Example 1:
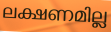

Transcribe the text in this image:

ലക്ഷണമില്ല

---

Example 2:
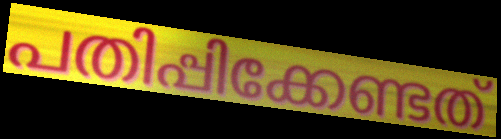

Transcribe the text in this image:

പതിപ്പിക്കേണ്ടത്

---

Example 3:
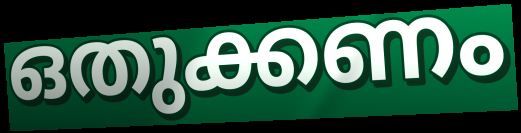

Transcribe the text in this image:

ഒതുക്കണം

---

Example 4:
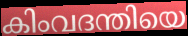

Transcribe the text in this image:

കിംവദന്തിയെ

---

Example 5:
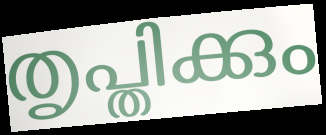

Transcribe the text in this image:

തൃപ്തിക്കും